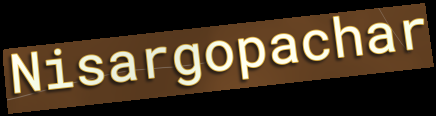
Nisargopachar